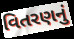
વિતરણનું